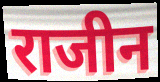
राजीन